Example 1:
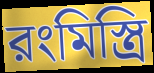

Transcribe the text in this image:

রংমিস্ত্রি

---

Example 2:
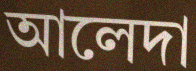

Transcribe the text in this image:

আলেদা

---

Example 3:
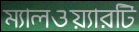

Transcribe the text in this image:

ম্যালওয়্যারটি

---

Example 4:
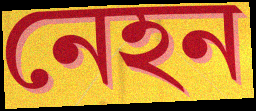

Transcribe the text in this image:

নেহন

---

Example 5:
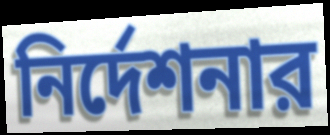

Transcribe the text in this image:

নির্দেশনার